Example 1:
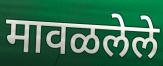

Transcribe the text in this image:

मावळलेले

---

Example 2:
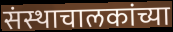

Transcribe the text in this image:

संस्थाचालकांच्या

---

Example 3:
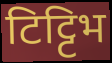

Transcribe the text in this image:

टिट्टिभ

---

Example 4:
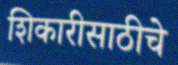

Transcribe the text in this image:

शिकारीसाठीचे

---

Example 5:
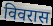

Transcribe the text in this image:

विवरास